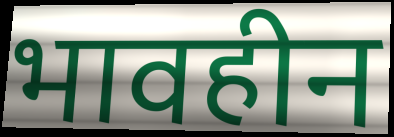
भावहीन